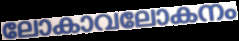
ലോകാവലോകനം